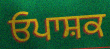
ਓਪਾਸ਼ਕ